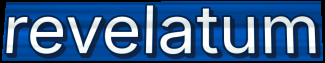
revelatum